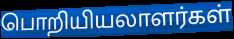
பொறியியலாளர்கள்